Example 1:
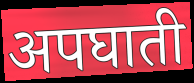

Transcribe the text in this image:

अपघाती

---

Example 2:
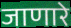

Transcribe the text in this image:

जाणारे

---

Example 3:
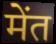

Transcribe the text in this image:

मेंत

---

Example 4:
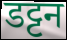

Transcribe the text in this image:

डट्टन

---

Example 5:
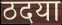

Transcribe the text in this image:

ठदया